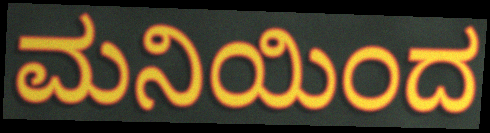
ಮನಿಯಿಂದ